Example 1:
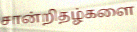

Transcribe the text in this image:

சான்றிதழ்களை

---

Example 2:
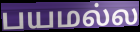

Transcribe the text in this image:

பயமல்ல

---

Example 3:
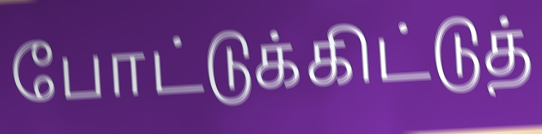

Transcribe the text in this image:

போட்டுக்கிட்டுத்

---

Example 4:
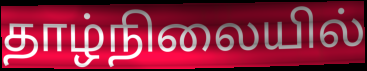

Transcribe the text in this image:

தாழ்நிலையில்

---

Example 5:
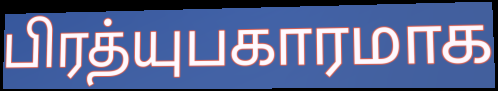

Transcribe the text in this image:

பிரத்யுபகாரமாக